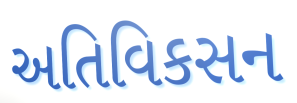
અતિવિકસન